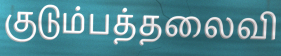
குடும்பத்தலைவி